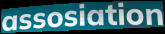
assosiation